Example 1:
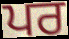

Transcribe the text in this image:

ਪਰ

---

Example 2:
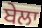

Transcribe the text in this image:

ਬੇਲਾ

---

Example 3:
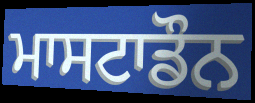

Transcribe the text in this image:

ਮਾਸਟਾਡੌਨ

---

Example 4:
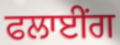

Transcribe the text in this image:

ਫਲਾਈਂਗ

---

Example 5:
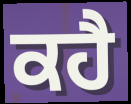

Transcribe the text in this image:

ਕਹੈ